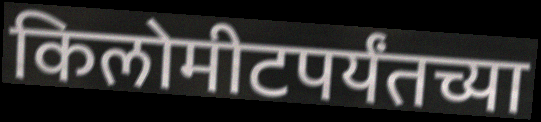
किलोमीटपर्यंतच्या